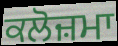
ਕਲੋਜ਼ਮਾ